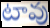
టావు